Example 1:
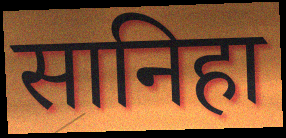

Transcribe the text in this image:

सानिहा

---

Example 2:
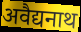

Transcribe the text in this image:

अवैद्यनाथ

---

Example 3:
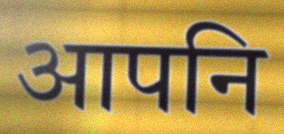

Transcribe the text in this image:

आपनि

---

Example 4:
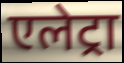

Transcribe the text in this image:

एलेट्रा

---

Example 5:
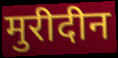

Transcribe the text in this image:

मुरीदीन